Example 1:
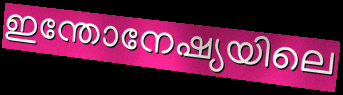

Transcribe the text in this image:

ഇന്തോനേഷ്യയിലെ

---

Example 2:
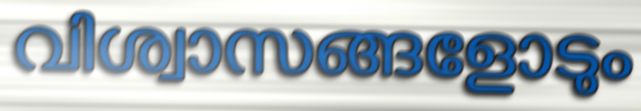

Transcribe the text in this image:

വിശ്വാസങ്ങളോടും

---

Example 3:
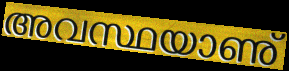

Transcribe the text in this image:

അവസ്ഥയാണു്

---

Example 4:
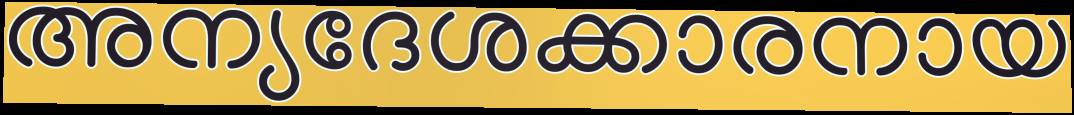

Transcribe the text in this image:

അന്യദേശക്കാരനായ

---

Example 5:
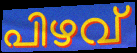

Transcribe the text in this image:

പിഴവ്